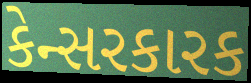
કેન્સરકારક